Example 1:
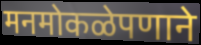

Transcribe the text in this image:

मनमोकळेपणाने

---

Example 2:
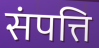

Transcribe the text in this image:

संपत्ति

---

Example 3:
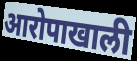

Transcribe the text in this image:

आरोपाखाली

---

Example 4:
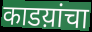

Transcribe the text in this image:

काडय़ांचा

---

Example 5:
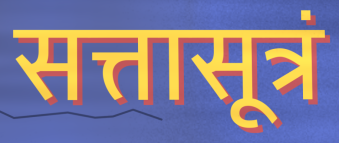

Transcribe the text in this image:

सत्तासूत्रं